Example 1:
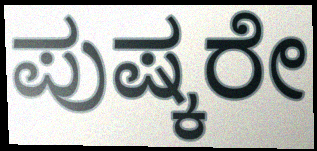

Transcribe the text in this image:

ಪುಷ್ಕರೇ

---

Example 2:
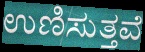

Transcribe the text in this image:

ಉಣಿಸುತ್ತವೆ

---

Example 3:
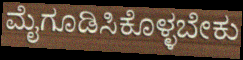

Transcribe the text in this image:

ಮೈಗೂಡಿಸಿಕೊಳ್ಳಬೇಕು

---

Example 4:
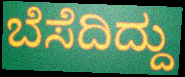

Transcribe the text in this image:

ಬೆಸೆದಿದ್ದು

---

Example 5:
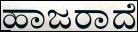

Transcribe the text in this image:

ಹಾಜರಾದೆ